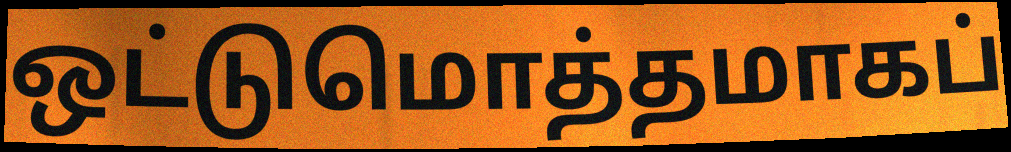
ஒட்டுமொத்தமாகப்